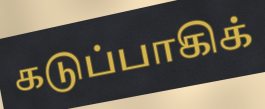
கடுப்பாகிக்